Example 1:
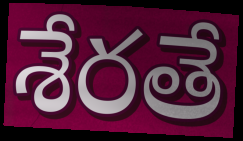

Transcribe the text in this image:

శేరతే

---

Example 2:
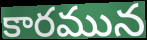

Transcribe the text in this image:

కారమున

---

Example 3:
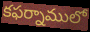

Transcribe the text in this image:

కఫర్నాములో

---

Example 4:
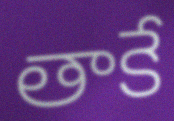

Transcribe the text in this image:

తాకే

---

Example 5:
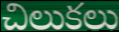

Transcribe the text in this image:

చిలుకలు